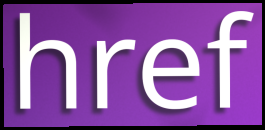
href